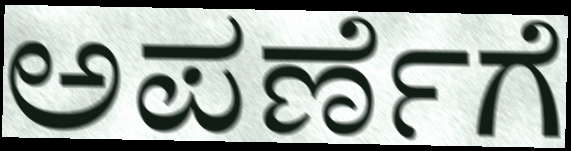
ಅಪರ್ಣೆಗೆ